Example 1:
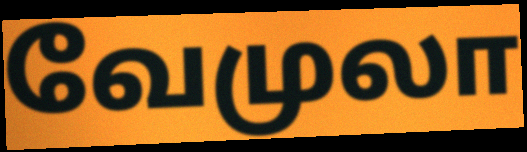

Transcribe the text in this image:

வேமுலா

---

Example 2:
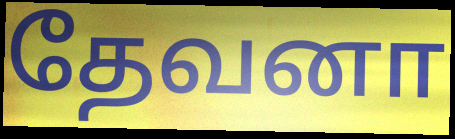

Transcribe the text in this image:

தேவனா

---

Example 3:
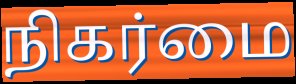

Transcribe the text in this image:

நிகர்மை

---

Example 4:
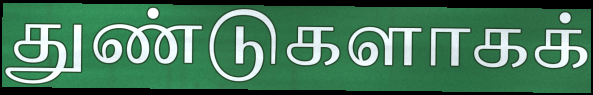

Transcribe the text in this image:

துண்டுகளாகக்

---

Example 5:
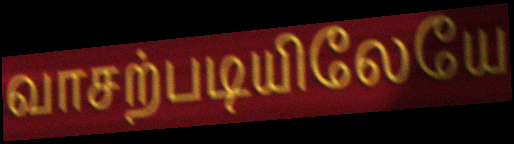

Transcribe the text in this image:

வாசற்படியிலேயே